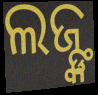
ଲଜ୍ଙ୍କ